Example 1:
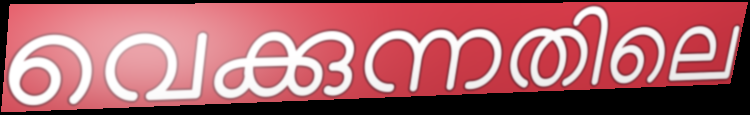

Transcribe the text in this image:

വെക്കുന്നതിലെ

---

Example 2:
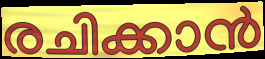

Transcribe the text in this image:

രചിക്കാൻ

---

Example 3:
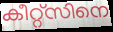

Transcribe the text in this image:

കീറ്റ്സിനെ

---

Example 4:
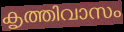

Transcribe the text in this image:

കൃത്തിവാസം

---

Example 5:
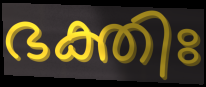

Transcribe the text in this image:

ഭക്തിഃ